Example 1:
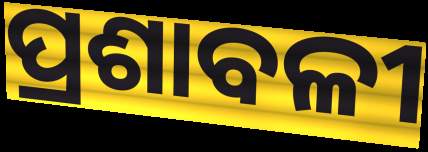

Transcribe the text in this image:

ପ୍ରଶାବଳୀ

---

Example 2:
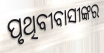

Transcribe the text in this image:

ପୃଥିବୀବାସୀଙ୍କର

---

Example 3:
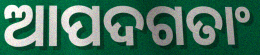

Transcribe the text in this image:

ଆପଦଗତାଂ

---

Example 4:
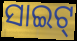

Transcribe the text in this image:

ସାଇଟ୍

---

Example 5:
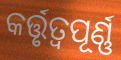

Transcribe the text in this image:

କର୍ତ୍ତୃତ୍ୱପୂର୍ଣ୍ଣ